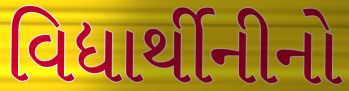
વિદ્યાર્થીનીનો